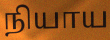
நியாய